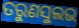
ତରୁଣସୁଲଭ